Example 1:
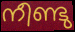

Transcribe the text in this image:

നീണ്ടു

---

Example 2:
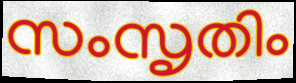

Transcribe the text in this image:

സംസൃതിം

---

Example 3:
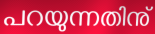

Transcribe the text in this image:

പറയുന്നതിനു്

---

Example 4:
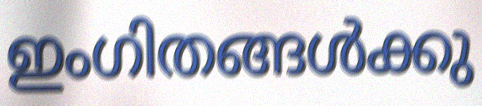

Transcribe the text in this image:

ഇംഗിതങ്ങൾക്കു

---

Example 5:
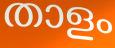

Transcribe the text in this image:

താളം